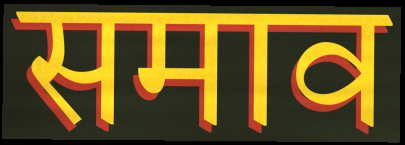
समाव